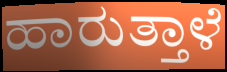
ಹಾರುತ್ತಾಳೆ